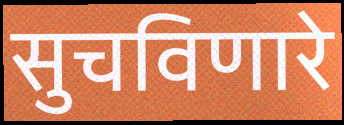
सुचविणारे